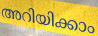
അറിയിക്കാം